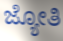
ಜ್ಯೋತಿ